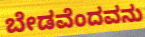
ಬೇಡವೆಂದವನು